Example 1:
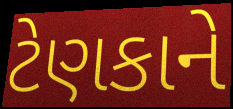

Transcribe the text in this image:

ટેણકાને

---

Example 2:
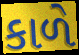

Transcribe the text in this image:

કાળે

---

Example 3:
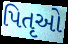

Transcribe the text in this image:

પિતૃઓ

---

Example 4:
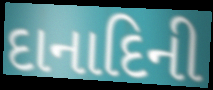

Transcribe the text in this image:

દાનાદિની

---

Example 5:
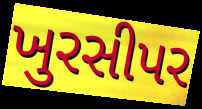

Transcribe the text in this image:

ખુરસીપર